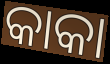
କାକା